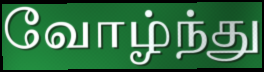
வோழ்ந்து